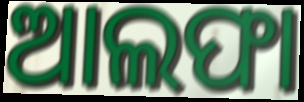
ଆଲଫା